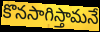
కొనసాగిస్తామనే